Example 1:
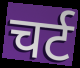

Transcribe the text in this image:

चर्ट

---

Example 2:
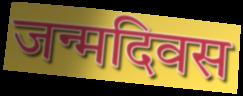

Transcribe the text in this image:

जन्मदिवस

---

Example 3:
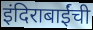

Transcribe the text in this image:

इंदिराबाईंची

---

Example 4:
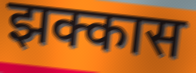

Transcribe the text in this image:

झक्कास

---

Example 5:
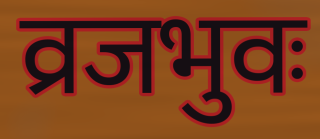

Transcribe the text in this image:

व्रजभुवः